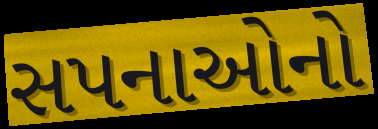
સપનાઓનો